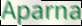
Aparna